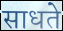
साधते